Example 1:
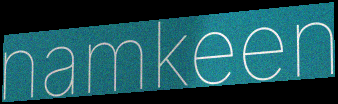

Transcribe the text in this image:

namkeen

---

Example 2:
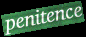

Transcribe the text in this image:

penitence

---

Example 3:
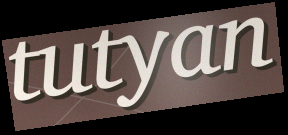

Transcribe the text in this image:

tutyan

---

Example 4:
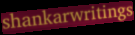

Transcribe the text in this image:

shankarwritings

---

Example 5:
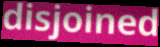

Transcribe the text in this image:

disjoined